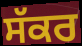
ਸੱਕਰ